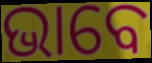
ଭାବେ